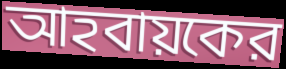
আহবায়কের